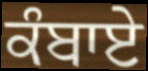
ਕੰਬਾਏ